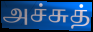
அச்சுத்